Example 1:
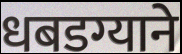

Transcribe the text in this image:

धबडग्याने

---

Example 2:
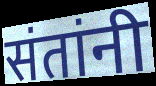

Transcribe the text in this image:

संतांनी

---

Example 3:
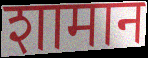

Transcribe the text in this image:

शामान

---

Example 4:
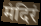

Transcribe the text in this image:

मंदिरं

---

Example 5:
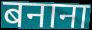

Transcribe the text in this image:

बनाना